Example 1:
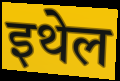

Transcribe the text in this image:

इथेल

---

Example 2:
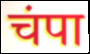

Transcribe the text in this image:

चंपा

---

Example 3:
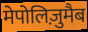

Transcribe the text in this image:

मेपोलिज़ुमैब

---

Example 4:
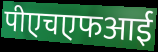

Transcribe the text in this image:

पीएचएफआई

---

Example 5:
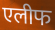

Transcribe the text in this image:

एलीफ